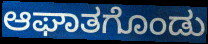
ಆಘಾತಗೊಂಡು